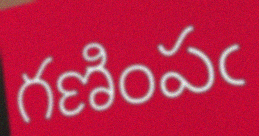
గణింపఁ